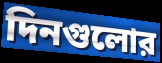
দিনগুলোর